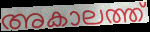
അകാലത്ത്